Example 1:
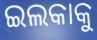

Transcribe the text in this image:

ଇଲକାକୁ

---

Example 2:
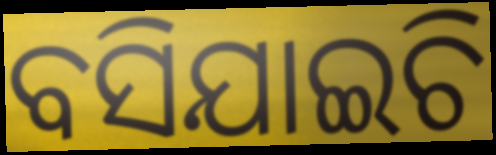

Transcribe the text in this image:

ବସିଯାଇଚି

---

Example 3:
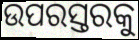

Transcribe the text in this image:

ଉପରସ୍ତରକୁ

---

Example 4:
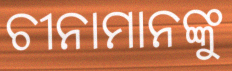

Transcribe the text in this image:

ଚୀନାମାନଙ୍କୁ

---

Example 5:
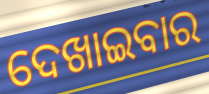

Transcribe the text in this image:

ଦେଖାଇବାର